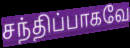
சந்திப்பாகவே